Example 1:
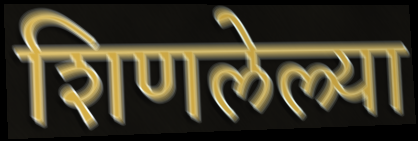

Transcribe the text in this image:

शिणलेल्या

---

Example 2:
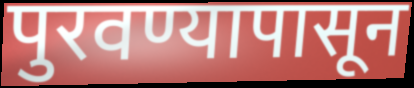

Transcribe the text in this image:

पुरवण्यापासून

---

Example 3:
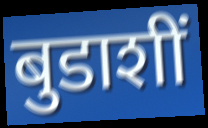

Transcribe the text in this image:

बुडाशीं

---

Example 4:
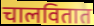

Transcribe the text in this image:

चालवितात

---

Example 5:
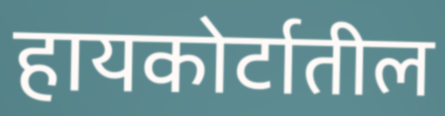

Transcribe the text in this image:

हायकोर्टातील